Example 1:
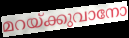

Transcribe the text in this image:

മറയ്ക്കുവാനോ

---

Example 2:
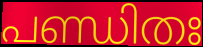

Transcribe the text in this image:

പണ്ഡിതഃ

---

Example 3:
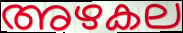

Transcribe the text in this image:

അഴകല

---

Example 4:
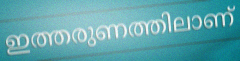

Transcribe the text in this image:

ഇത്തരുണത്തിലാണ്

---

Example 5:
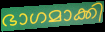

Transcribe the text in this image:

ഭാഗമാക്കി